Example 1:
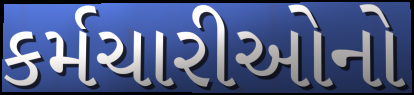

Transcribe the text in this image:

કર્મચારીઓનો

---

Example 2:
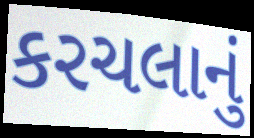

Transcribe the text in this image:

કરચલાનું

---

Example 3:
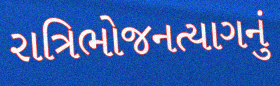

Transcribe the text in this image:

રાત્રિભોજનત્યાગનું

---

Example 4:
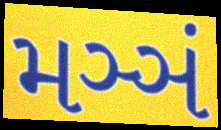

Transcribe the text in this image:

મઞ્ઞં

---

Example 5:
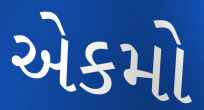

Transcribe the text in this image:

એકમો